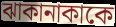
ঝাকানাকাকে